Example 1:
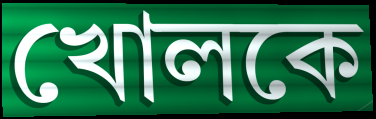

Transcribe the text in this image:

খোলকে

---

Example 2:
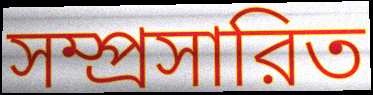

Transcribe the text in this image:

সম্প্রসারিত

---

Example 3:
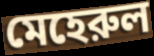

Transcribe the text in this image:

মেহেরুল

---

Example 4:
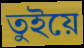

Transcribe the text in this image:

তুইয়ে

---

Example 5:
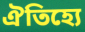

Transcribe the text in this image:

ঐতিহ্যে